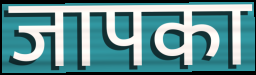
जापका